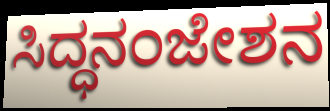
ಸಿದ್ಧನಂಜೇಶನ